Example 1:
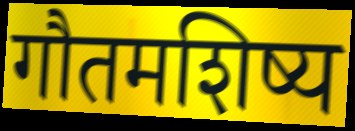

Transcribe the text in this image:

गौतमशिष्य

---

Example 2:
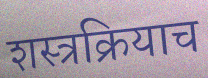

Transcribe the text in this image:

शस्त्रक्रियाच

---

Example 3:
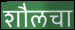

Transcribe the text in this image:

शौलचा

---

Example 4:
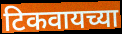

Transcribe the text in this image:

टिकवायच्या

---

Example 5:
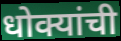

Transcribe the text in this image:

धोक्यांची